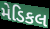
મેડિકલ